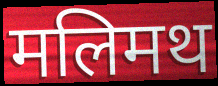
मलिमथ